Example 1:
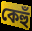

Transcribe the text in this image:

কেহুঁ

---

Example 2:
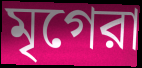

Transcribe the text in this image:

মৃগেরা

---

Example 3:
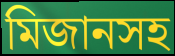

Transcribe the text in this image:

মিজানসহ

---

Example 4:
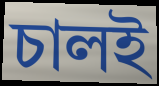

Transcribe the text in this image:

চালই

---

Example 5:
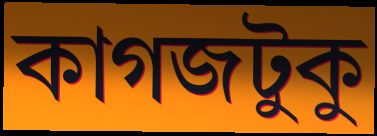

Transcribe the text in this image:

কাগজটুকু